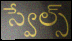
స్వేల్స్